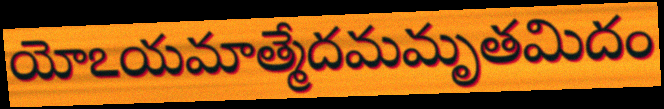
యోఽయమాత్మేదమమృతమిదం